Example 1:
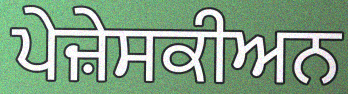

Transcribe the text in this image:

ਪੇਜ਼ੇਸਕੀਅਨ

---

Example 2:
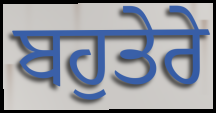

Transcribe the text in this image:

ਬਹੁਤੇਰੇ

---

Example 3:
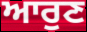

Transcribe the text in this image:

ਆਰੁਣ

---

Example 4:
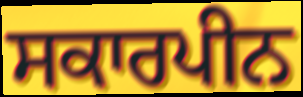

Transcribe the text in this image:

ਸਕਾਰਪੀਨ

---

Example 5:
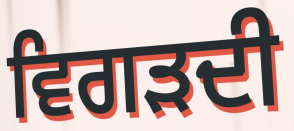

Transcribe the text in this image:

ਵਿਗੜਦੀ